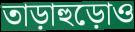
তাড়াহুড়োও